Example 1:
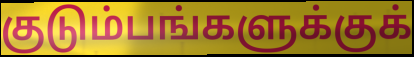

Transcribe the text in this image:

குடும்பங்களுக்குக்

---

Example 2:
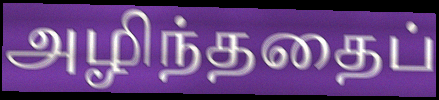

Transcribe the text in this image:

அழிந்ததைப்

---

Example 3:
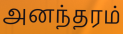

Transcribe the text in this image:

அனந்தரம்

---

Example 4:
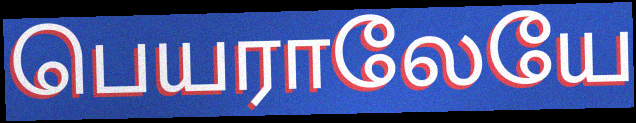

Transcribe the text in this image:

பெயராலேயே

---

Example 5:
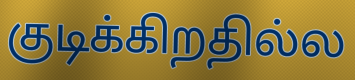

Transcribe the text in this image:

குடிக்கிறதில்ல